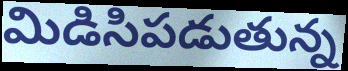
మిడిసిపడుతున్న